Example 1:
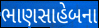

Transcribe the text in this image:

ભાણસાહેબના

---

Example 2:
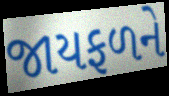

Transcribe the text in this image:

જાયફળને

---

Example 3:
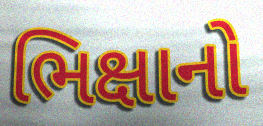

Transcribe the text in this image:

ભિક્ષાનો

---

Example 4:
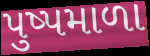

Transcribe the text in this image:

પુષ્પમાળા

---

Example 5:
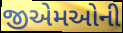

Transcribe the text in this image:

જીએમઓની